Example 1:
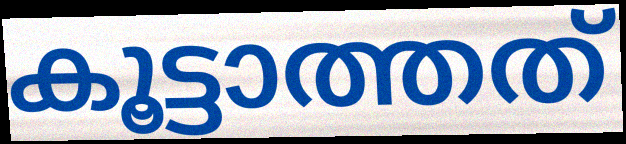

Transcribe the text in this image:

കൂട്ടാത്തത്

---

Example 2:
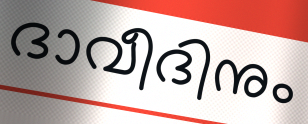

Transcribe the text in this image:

ദാവീദിനും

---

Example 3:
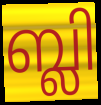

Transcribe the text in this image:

ബ്ലി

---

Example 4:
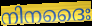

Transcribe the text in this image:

നിനദൈഃ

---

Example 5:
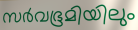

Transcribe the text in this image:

സർവഭൂമിയിലും